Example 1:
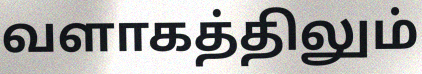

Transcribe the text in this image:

வளாகத்திலும்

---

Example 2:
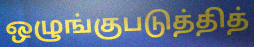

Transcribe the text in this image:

ஒழுங்குபடுத்தித்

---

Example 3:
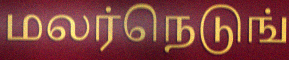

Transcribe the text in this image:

மலர்நெடுங்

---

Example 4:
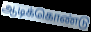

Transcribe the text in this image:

ஆடிக்கொண்டு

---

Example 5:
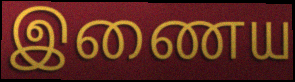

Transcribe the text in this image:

இணைய